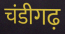
चंडीगढ़